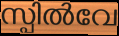
സ്പിൽവേ